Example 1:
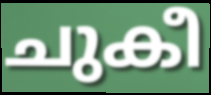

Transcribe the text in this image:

ചുകീ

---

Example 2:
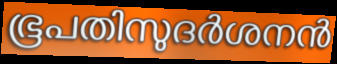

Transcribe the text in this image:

ഭൂപതിസുദർശനൻ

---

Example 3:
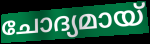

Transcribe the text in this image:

ചോദ്യമായ്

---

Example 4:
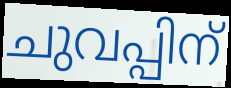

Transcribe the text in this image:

ചുവപ്പിന്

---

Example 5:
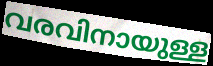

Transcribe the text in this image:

വരവിനായുള്ള